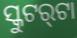
ସ୍କୁଟର୍‌ଟା